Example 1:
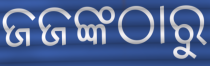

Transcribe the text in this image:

ଜଜଙ୍କଠାରୁ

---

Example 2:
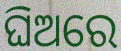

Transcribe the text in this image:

ଘିଅରେ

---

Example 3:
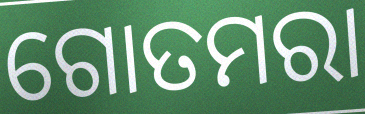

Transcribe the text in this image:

ଗୋତମରା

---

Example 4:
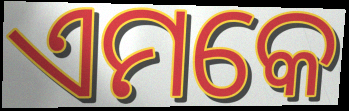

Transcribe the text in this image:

ଏମକେ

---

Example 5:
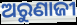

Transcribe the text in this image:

ଅରୁଣାଜୀ